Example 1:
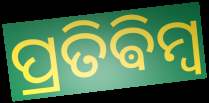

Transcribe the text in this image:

ପ୍ରତିଵିମ୍ବ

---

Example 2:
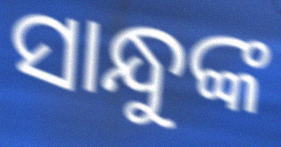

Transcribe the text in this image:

ସାନ୍ଧୁଙ୍କ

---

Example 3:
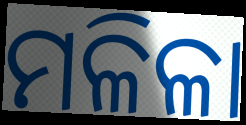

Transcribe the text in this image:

ମଳିଳା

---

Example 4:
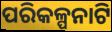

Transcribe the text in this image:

ପରିକଳ୍ପନାଟି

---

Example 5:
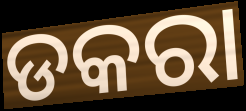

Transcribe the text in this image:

ଡକରା